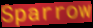
Sparrow